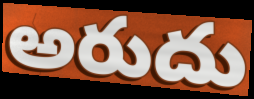
అరుదు